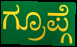
ಗ್ರೂಪ್ಗೆ